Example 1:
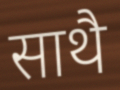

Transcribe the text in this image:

साथै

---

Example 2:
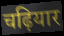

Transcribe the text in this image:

चढ़ियार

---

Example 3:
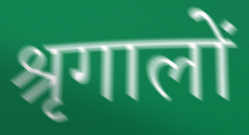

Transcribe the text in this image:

श्रृगालों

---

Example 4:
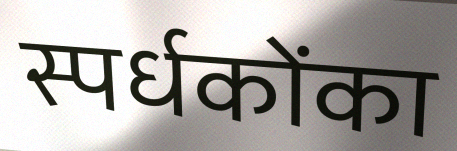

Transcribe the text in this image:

स्पर्धकोंका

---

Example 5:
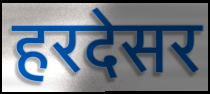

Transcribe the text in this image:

हरदेसर